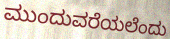
ಮುಂದುವರೆಯಲೆಂದು